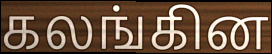
கலங்கின